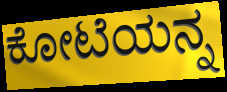
ಕೋಟೆಯನ್ನ